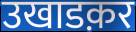
उखाडक़र